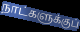
நாட்களுக்குப்